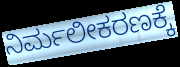
ನಿರ್ಮಲೀಕರಣಕ್ಕೆ